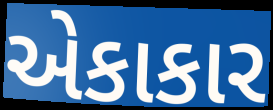
એકાકાર